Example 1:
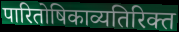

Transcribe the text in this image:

पारितोषिकाव्यतिरिक्त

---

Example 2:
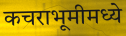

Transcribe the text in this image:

कचराभूमीमध्ये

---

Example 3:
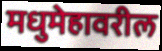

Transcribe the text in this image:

मधुमेहावरील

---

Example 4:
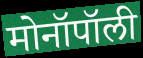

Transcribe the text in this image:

मोनॉपॉली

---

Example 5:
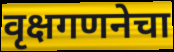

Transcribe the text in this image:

वृक्षगणनेचा